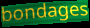
bondages